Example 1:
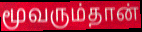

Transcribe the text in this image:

மூவரும்தான்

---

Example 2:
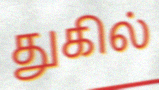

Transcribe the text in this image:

துகில்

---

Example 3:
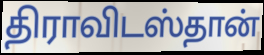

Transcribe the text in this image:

திராவிடஸ்தான்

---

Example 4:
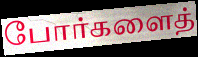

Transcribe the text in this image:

போர்களைத்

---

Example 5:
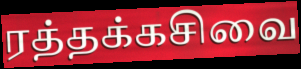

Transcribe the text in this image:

ரத்தக்கசிவை